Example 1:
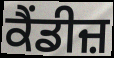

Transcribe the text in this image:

ਕੈਂਡੀਜ਼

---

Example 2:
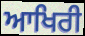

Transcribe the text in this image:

ਆਖਿਰੀ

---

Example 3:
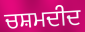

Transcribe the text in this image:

ਚਸ਼ਮਦੀਦ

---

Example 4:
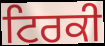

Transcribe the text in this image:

ਟਿਰਕੀ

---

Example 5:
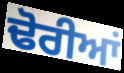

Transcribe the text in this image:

ਢੋਰੀਆਂ